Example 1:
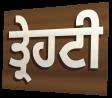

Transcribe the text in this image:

ਤ੍ਰੇਹਟੀ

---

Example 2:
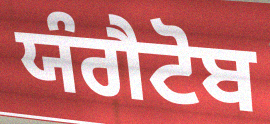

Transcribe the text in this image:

ਯੰਗੈਟੋਬ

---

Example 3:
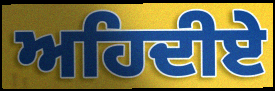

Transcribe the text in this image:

ਅਹਿਦੀਏ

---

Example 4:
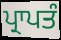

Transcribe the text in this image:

ਪ੍ਰਾਪਤੰ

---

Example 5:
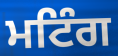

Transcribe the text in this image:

ਮਟਿੰਗ